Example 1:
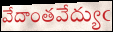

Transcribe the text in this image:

వేదాంతవేద్యుఁ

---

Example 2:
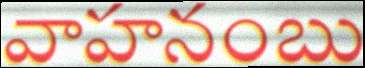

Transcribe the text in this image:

వాహనంబు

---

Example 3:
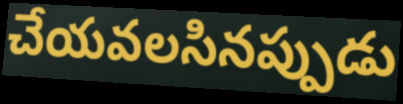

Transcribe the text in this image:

చేయవలసినప్పుడు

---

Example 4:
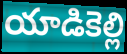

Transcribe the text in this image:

యాడికెల్లి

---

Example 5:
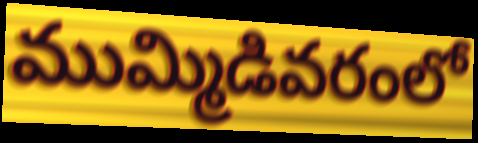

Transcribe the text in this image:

ముమ్మిడివరంలో